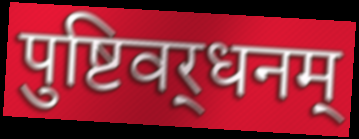
पुष्टिवर्धनम्